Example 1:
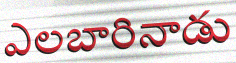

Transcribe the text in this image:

ఎలబారినాడు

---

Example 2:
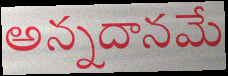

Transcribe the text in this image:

అన్నదానమే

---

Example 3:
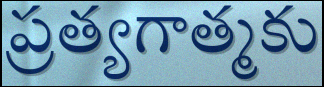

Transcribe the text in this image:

ప్రత్యగాత్మకు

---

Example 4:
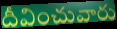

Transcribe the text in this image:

దీవించువారు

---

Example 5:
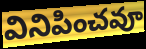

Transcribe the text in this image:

వినిపించవూ